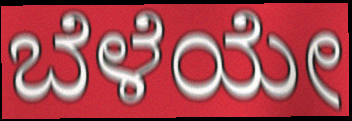
ಬೆಳೆಯೇ